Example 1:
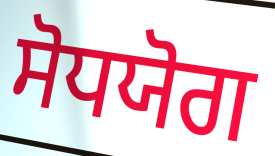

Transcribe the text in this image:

ਸੋਧਯੋਗ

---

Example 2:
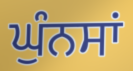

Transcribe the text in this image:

ਘੁੰਨਸਾਂ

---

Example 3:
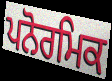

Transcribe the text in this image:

ਪਨੋਰਮਿਕ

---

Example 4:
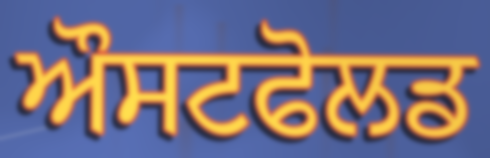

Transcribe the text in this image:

ਔਸਟਫੋਲਡ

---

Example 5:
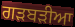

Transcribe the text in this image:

ਗੜਬੜੀਆ